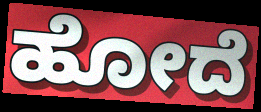
ಹೋದೆ